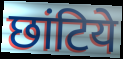
छांटिये